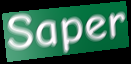
Saper